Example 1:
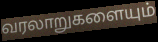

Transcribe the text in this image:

வரலாறுகளையும்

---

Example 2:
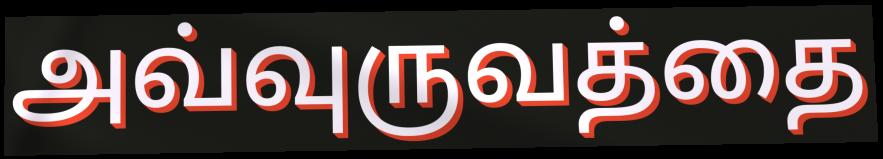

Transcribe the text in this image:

அவ்வுருவத்தை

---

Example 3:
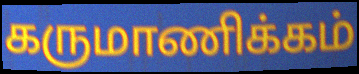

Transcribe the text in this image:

கருமாணிக்கம்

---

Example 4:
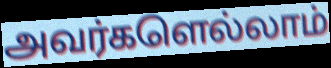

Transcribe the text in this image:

அவர்களெல்லாம்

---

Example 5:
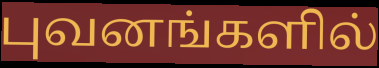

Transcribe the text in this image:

புவனங்களில்